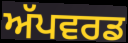
ਅੱਪਵਰਡ